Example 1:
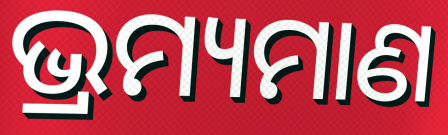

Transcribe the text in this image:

ଭ୍ରମ୍ୟମାଣ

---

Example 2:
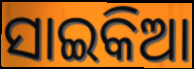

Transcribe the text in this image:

ସାଇକିଆ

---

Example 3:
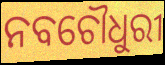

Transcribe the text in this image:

ନବଚୌଧୁରୀ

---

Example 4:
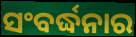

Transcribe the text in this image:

ସଂବର୍ଦ୍ଧନାର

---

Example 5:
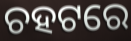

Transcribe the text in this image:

ଚହଟରେ